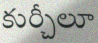
కుర్చీలూ